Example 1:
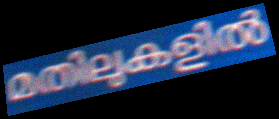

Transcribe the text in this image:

മതിലുകളിൽ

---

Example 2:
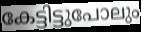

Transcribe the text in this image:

കേട്ടിട്ടുപോലും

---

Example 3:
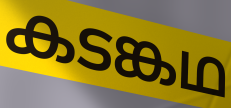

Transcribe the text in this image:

കടങ്കഥ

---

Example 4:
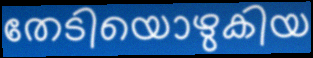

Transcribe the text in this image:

തേടിയൊഴുകിയ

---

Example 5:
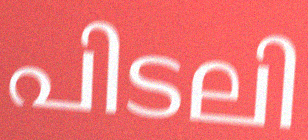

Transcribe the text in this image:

പിടലി